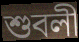
শুবলী